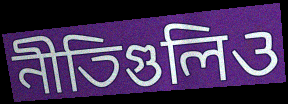
নীতিগুলিও